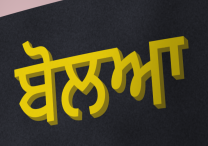
ਬੋਲਆ